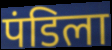
पंडिला